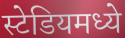
स्टेडियमध्ये